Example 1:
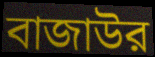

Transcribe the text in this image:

বাজাউর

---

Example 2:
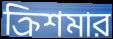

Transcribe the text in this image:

ক্রিশমার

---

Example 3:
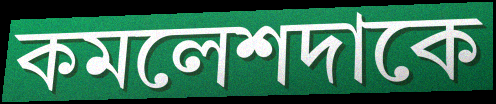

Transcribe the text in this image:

কমলেশদাকে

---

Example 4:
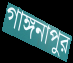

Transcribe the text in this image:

গাঙ্গনাপুর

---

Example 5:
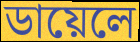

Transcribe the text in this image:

ডায়েলে